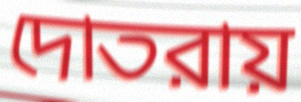
দোতরায়